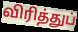
விரித்துப்